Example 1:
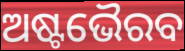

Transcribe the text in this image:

ଅଷ୍ଟଭୈରବ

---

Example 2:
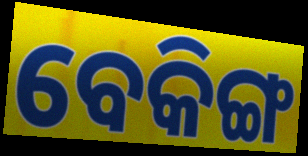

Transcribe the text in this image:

ବେକିଙ୍ଗ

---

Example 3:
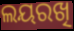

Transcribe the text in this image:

ଲୟରଖି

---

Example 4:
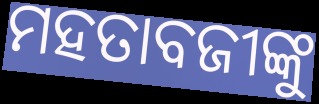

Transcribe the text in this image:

ମହତାବଜୀଙ୍କୁ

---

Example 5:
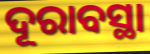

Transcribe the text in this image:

ଦୂରାବସ୍ଥା